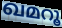
ഖമറൂ